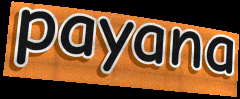
payana